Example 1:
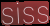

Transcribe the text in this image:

siss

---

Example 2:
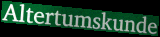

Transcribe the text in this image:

Altertumskunde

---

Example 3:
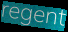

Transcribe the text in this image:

regent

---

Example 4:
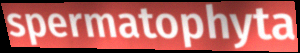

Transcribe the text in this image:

spermatophyta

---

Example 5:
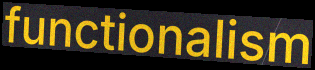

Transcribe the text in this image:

functionalism